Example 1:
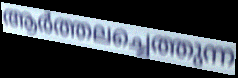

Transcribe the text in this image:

ആർത്തലച്ചെത്തുന്ന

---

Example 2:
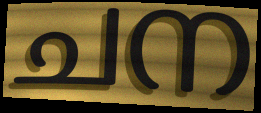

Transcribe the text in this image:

ചന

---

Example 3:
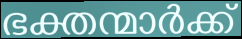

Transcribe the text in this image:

ഭക്തന്മാർക്ക്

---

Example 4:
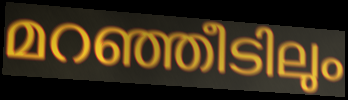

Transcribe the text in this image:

മറഞ്ഞീടിലും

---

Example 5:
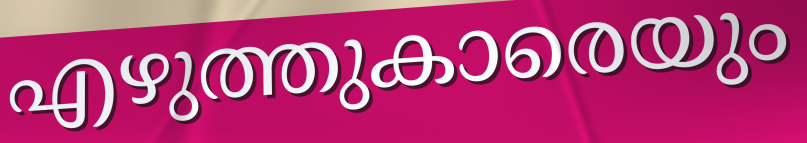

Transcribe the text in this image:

എഴുത്തുകാരെയും